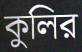
কুলির